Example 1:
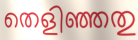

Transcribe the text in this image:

തെളിഞ്ഞതു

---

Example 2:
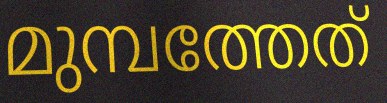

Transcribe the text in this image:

മുമ്പത്തേത്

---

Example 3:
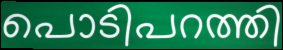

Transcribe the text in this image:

പൊടിപറത്തി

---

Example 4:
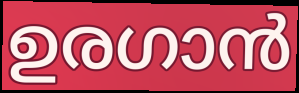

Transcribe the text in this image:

ഉരഗാൻ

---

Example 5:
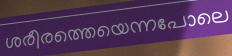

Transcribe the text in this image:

ശരീരത്തെയെന്നപോലെ